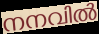
നനവിൽ